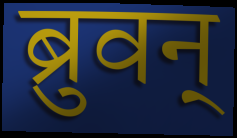
ब्रुवन्